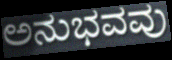
ಅನುಭವವು